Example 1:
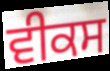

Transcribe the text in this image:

ਵੀਕਸ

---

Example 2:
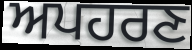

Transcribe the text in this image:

ਅਪਹਰਣ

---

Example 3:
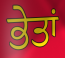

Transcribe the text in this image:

ਭੇਤਾਂ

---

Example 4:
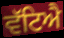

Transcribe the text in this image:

ਵੱਟਿਐ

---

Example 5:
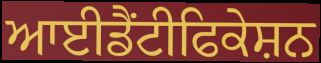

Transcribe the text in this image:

ਆਈਡੈਂਟੀਫਿਕੇਸ਼ਨ